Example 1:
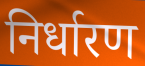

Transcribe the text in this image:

निर्धारण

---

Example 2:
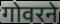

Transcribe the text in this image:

गोवरने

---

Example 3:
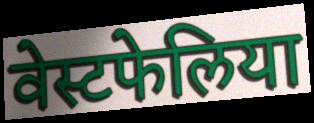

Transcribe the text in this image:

वेस्टफेलिया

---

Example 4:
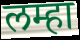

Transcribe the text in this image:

लम्हा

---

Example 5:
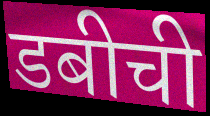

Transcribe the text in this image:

डबीची